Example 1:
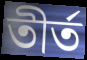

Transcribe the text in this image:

তীর্ত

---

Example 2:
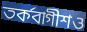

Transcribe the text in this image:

তর্কবাগীশও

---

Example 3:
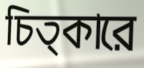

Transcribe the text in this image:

চিত্কারে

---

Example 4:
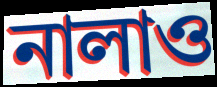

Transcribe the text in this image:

নালাও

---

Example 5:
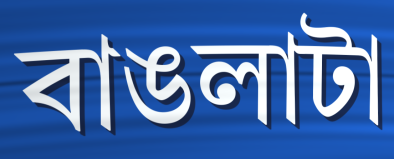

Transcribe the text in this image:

বাঙলাটা